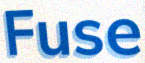
Fuse